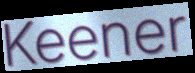
Keener